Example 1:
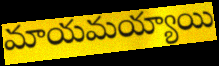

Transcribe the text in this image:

మాయమయ్యాయి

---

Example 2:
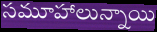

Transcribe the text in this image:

సమూహాలున్నాయి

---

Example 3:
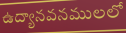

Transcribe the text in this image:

ఉద్యానవనములలో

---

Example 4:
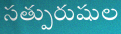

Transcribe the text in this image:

సత్పురుషుల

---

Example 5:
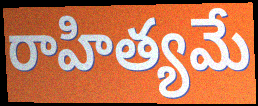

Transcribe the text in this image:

రాహిత్యమే